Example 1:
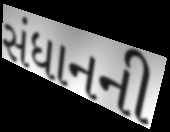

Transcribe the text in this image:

સંધાનની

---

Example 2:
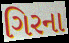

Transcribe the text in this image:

ગિરના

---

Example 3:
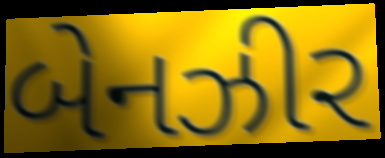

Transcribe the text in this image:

બેનઝીર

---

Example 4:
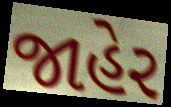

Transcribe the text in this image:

જાહેર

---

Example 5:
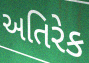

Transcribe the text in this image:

અતિરેક